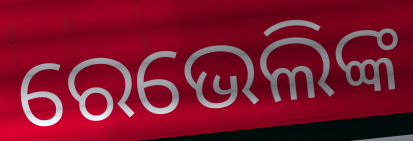
ରେଭେଲିଙ୍କ